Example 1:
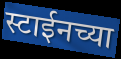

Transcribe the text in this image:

स्टाईनच्या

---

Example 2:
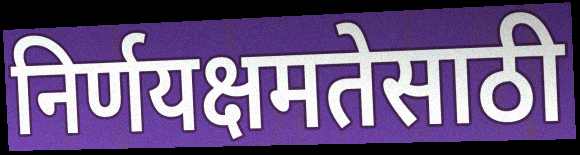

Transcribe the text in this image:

निर्णयक्षमतेसाठी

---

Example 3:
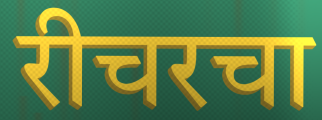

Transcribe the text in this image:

रीचरचा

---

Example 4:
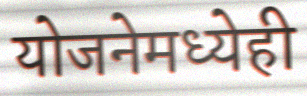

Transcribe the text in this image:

योजनेमध्येही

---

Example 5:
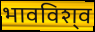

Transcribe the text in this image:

भावविश्व